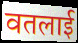
वतलाई